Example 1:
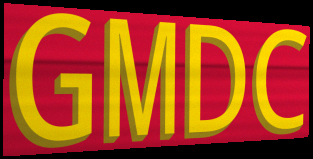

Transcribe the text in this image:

GMDC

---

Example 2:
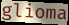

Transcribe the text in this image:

glioma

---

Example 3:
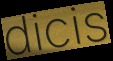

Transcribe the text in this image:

dicis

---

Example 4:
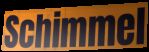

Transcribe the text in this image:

Schimmel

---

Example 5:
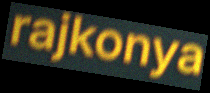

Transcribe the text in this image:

rajkonya